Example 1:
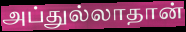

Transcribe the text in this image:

அப்துல்லாதான்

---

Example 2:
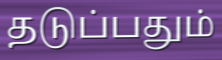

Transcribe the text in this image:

தடுப்பதும்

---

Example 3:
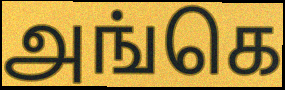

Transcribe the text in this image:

அங்கெ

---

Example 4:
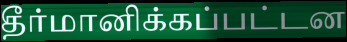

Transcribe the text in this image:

தீர்மானிக்கப்பட்டன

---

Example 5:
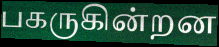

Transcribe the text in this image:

பகருகின்றன